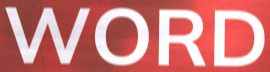
WORD